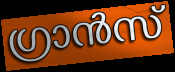
ഗ്രാൻസ്